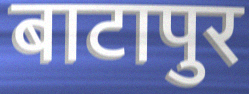
बाटापुर